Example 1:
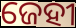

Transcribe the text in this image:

ଜେହୀ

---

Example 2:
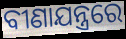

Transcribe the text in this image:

ବୀଣାଯନ୍ତ୍ରରେ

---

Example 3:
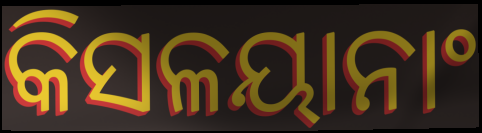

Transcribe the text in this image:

କିସଳୟାନାଂ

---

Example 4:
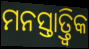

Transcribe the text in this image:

ମନସ୍ତାତ୍ତ୍ବିକ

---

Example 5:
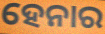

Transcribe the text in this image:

ହେନାର